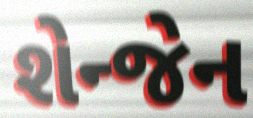
શેન્જેન